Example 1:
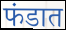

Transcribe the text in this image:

फंडात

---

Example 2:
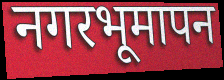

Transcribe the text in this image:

नगरभूमापन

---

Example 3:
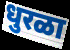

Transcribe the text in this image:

धुरळा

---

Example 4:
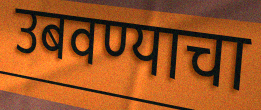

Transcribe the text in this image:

उबवण्याचा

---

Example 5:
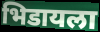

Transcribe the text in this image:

भिडायला